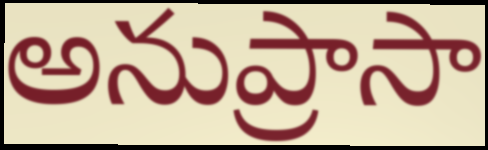
అనుప్రాసా